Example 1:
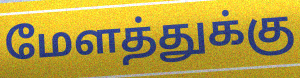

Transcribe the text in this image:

மேளத்துக்கு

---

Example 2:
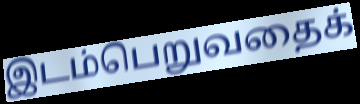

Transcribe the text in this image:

இடம்பெறுவதைக்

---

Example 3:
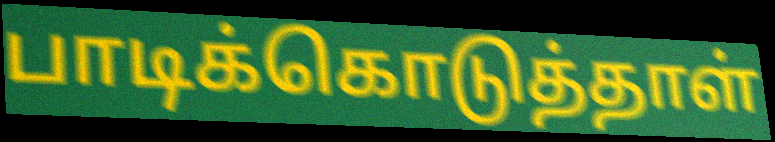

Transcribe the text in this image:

பாடிக்கொடுத்தாள்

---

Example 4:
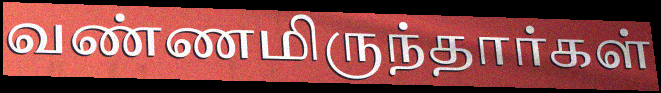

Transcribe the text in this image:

வண்ணமிருந்தார்கள்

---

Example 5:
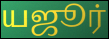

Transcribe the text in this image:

யஜூர்